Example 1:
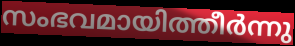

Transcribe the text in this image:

സംഭവമായിത്തീർന്നു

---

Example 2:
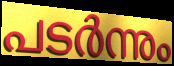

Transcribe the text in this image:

പടർന്നും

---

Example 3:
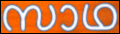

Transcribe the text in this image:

സാഥ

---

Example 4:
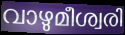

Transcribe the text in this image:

വാഴുമീശ്വരി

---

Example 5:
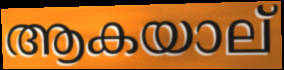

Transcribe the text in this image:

ആകയാല്